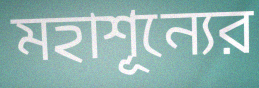
মহাশূন্যের